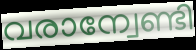
വരാന്വേണ്ടി